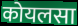
कोयलसा